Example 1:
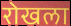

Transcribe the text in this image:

रोखला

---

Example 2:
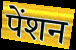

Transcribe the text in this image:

पेंशन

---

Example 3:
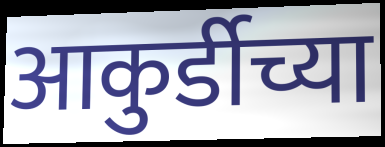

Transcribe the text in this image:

आकुर्डीच्या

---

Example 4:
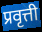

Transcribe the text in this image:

प्रवृत्ती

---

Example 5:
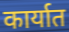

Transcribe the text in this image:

कार्यात